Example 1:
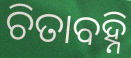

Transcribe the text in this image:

ଚିତାବହ୍ନି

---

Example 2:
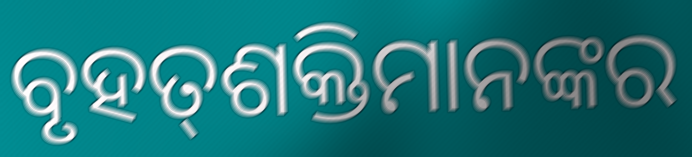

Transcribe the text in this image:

ବୃହତ୍‍ଶକ୍ତିମାନଙ୍କର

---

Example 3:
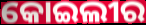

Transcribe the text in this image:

କୋଇଲୀର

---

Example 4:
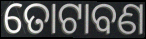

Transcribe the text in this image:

ତୋଟାବଣ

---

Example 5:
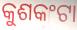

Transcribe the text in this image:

କୁଶକଂଟା